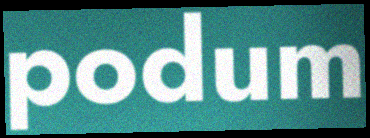
podum